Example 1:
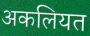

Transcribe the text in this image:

अकलियत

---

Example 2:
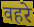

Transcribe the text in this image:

वहरे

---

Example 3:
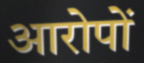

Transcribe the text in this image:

आरोपों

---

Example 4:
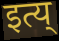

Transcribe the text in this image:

इत्य्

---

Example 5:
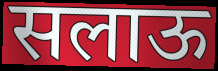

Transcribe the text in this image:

सलाऊ